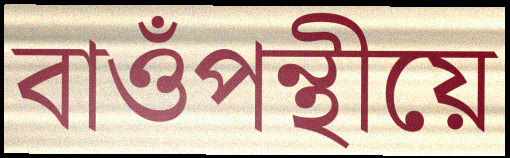
বাওঁপন্থীয়ে